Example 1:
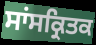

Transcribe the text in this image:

ਸਾਂਸਕ੍ਰਿਤਕ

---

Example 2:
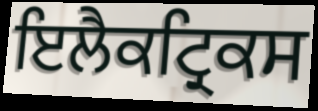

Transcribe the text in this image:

ਇਲੈਕਟ੍ਰਿਕਸ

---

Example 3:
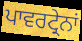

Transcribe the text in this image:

ਪਾਵਰਟ੍ਰੇਨਾਂ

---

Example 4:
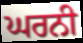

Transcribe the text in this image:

ਘਰਨੀ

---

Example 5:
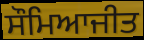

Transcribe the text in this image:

ਸੌਮਿਆਜੀਤ